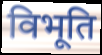
विभूति